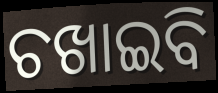
ଚଖାଇବି